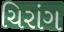
ચિરાંગ